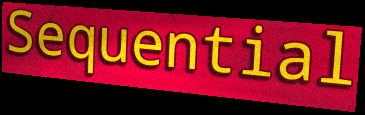
Sequential